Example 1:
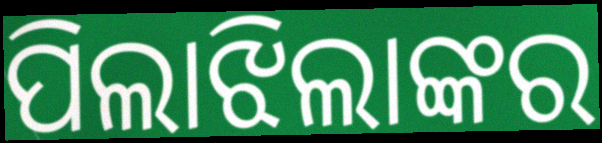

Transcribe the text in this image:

ପିଲାଝିଲାଙ୍କର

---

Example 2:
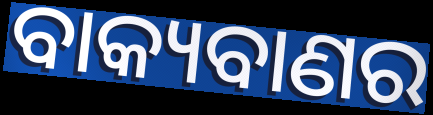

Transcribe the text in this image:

ବାକ୍ୟବାଣର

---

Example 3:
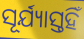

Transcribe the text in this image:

ସୂର୍ଯ୍ୟାସ୍ତହିଁ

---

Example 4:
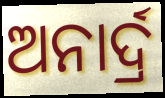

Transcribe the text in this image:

ଅନାର୍ଦ୍ର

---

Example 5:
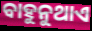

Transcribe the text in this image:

ବାହୁନୁଥାଏ